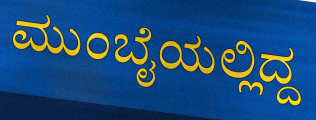
ಮುಂಬೈಯಲ್ಲಿದ್ದ